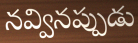
నవ్వినప్పుడు